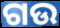
ଗଉ